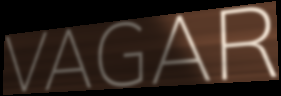
VAGAR